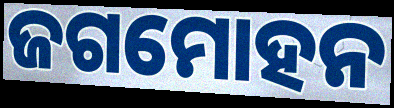
ଜଗମୋହନ